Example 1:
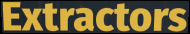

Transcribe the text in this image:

Extractors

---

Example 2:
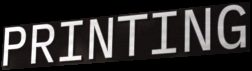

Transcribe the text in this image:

PRINTING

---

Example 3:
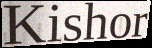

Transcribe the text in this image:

Kishor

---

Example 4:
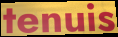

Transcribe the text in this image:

tenuis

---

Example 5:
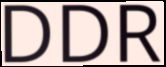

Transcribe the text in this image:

DDR